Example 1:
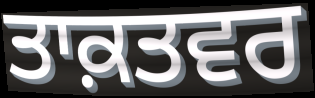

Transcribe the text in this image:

ਤਾਕ਼ਤਵਰ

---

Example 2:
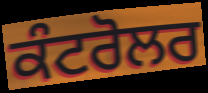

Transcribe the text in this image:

ਕੰਟਰੋਲਰ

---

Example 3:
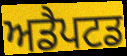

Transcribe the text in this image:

ਅਡੈਪਟਡ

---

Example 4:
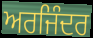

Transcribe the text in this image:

ਅਰਜਿੰਦਰ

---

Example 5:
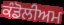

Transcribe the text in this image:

ਕੰਡੋਲੀਅਮ